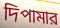
দিপামার